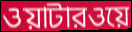
ওয়াটারওয়ে